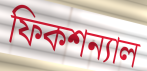
ফিকশন্যাল